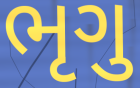
ભૃગુ